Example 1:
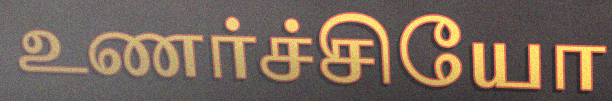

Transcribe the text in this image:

உணர்ச்சியோ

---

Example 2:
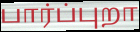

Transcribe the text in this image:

பார்ப்புறா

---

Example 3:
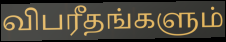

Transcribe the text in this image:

விபரீதங்களும்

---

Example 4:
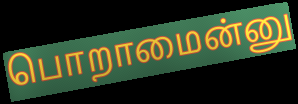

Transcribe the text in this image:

பொறாமைன்னு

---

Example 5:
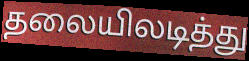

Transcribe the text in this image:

தலையிலடித்து